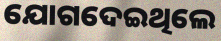
ଯୋଗଦେଇଥିଲେ